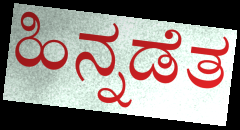
ಹಿನ್ನಡೆತ